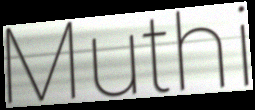
Muthi